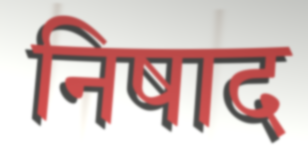
निषाद